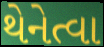
થેનેત્વા